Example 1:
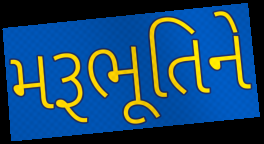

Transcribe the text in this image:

મરૂભૂતિને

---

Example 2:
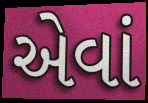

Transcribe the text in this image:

એવાં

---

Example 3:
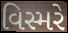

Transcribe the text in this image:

વિસ્મરે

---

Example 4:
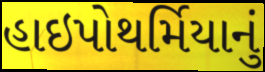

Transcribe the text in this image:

હાઇપોથર્મિયાનું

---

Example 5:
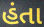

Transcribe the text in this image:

હંતા